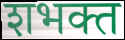
शभक्त